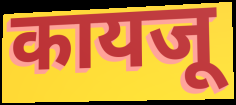
कायजू